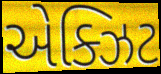
એક્ઝિટ